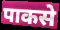
पाकसे